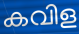
കവിള